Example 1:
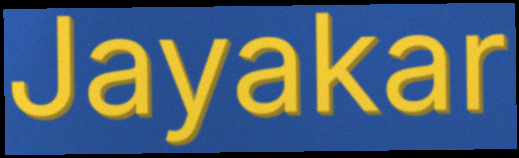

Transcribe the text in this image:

Jayakar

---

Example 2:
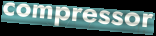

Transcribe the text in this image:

compressor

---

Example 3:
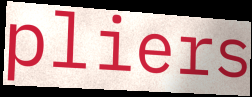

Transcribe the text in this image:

pliers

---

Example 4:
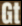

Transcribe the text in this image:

Gt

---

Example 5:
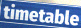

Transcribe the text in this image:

timetable